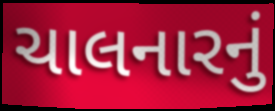
ચાલનારનું